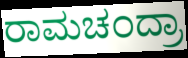
ರಾಮಚಂದ್ರಾ